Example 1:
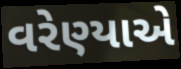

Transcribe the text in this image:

વરેણ્યાએ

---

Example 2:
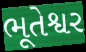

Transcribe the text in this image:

ભૂતેશ્વર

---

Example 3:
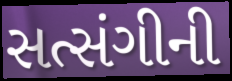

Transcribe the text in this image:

સત્સંગીની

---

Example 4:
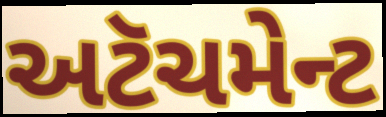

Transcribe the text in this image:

અટૅચમેન્ટ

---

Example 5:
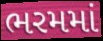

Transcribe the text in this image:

ભરમમાં